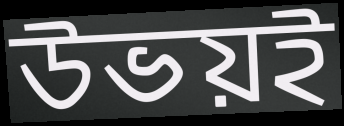
উভয়ই